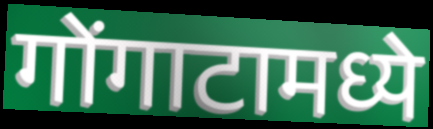
गोंगाटामध्ये